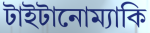
টাইটানোম্যাকি